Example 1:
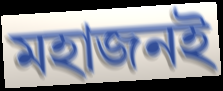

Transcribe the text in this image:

মহাজনই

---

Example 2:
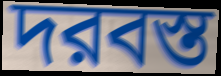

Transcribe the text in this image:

দরবস্ত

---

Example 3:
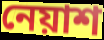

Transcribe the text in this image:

নেয়াশ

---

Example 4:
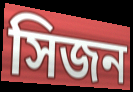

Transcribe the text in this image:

সিজন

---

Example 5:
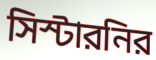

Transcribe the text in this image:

সিস্টারনির